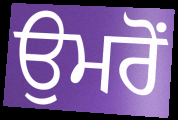
ਉਮਰੋਂ